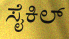
ಸೈಕಿಲ್